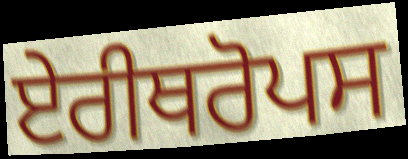
ਏਰੀਥਰੋਪਸ